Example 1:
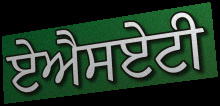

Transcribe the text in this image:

ਏਐਸਏਟੀ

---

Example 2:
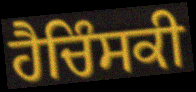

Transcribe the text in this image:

ਹੈਚਿੰਸਕੀ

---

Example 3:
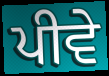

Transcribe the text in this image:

ਪੀਵੇ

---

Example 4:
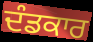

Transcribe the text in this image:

ਦੰਡਕਾਰ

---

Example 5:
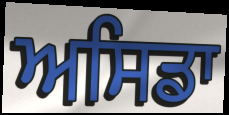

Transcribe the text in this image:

ਅਸਿਡਾ